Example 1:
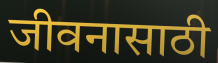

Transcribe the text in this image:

जीवनासाठी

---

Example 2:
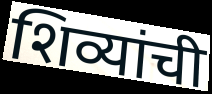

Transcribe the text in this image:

शिव्यांची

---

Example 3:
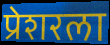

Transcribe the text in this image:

प्रेशरला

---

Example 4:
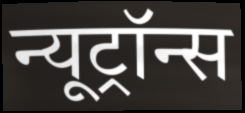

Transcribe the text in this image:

न्यूट्रॉन्स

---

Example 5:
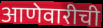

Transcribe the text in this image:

आणेवारीची